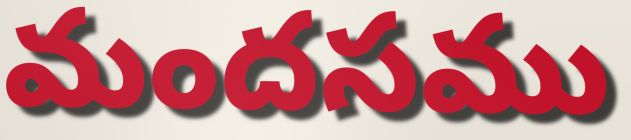
మందసము